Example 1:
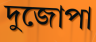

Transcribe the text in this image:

দুজোপা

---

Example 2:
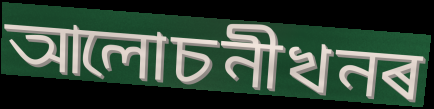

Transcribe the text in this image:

আলোচনীখনৰ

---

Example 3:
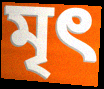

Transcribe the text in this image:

মৃৎ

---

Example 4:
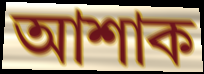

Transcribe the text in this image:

আশাক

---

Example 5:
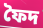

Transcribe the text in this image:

ফৈদ